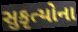
સુકૃત્યોના